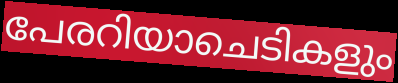
പേരറിയാചെടികളും